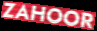
ZAHOOR